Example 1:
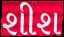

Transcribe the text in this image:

શીશ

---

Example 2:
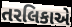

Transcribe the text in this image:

તરલિકાએ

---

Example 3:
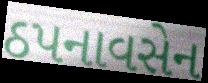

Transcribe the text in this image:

ઠપનાવસેન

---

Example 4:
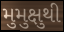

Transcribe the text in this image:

મુમુક્ષુથી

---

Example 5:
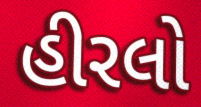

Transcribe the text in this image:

હીરલો